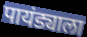
पायंड्याला